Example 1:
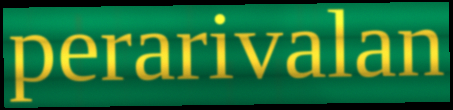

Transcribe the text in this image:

perarivalan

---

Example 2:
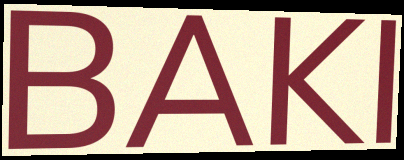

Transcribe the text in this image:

BAKI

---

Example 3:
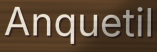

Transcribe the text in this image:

Anquetil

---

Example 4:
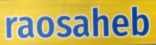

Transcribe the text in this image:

raosaheb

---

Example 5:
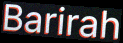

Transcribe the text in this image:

Barirah